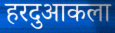
हरदुआकला